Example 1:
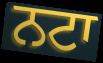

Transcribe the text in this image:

ਨਟਾ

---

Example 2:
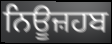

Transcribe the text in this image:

ਨਿਊਜ਼ਹਬ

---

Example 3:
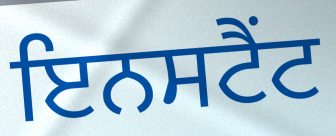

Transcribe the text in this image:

ਇਨਸਟੈਂਟ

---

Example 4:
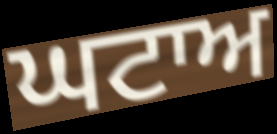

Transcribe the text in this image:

ਘਟਾਅ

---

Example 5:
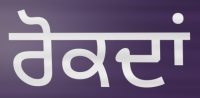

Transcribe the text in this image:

ਰੋਕਦਾਂ